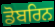
ਡੋਬਰਿਨ